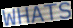
WHATS